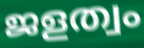
ജളത്വം